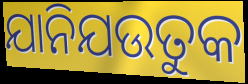
ଯାନିଯଉତୁକ